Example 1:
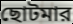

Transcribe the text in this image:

ছোটমার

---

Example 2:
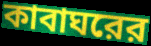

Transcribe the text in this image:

কাবাঘরের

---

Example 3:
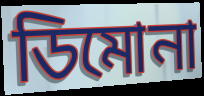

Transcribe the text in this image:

ডিমোনা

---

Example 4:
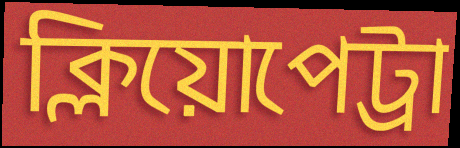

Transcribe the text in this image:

ক্লিয়োপেট্রা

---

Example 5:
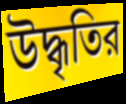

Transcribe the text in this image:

উদ্ধৃতির